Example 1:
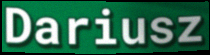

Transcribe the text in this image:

Dariusz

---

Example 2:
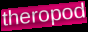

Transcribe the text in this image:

theropod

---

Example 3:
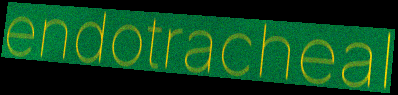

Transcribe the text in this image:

endotracheal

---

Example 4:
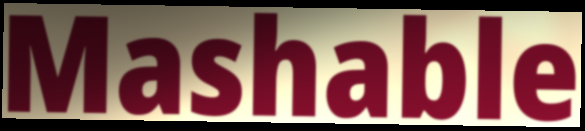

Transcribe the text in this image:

Mashable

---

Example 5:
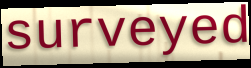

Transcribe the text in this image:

surveyed